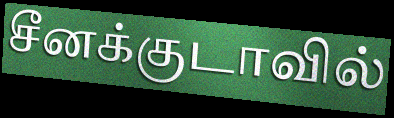
சீனக்குடாவில்